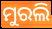
ମୁରଲି